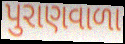
પુરાણવાળા